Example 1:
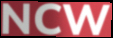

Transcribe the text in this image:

NCW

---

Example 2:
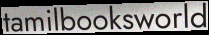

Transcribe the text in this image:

tamilbooksworld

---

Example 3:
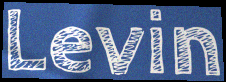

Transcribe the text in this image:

Levin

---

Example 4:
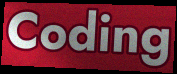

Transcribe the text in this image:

Coding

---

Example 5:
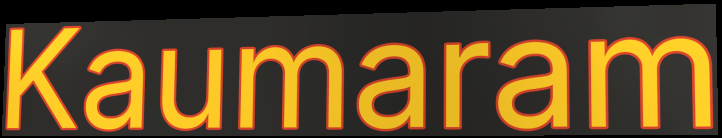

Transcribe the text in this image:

Kaumaram